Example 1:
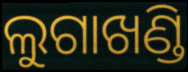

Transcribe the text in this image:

ଲୁଗାଖଣ୍ଡି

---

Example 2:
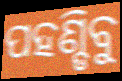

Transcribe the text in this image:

ପହଣ୍ଡିବୁ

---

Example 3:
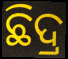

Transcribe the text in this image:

ଛିଦ୍ର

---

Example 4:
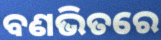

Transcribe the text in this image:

ବଣଭିତରେ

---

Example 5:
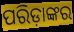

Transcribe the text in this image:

ପରିଡ଼ାଙ୍କର